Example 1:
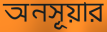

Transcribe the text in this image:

অনসূয়ার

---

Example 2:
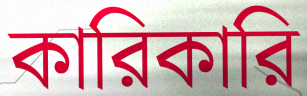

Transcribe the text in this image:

কারিকারি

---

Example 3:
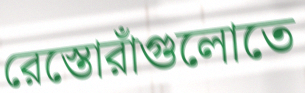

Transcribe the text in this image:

রেস্তোরাঁগুলোতে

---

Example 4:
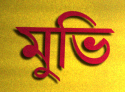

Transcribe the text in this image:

মুভি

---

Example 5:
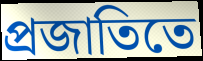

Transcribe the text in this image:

প্রজাতিতে